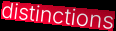
distinctions